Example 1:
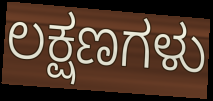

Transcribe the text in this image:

ಲಕ್ಷಣಗಳು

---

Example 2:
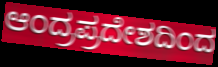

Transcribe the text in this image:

ಆಂದ್ರಪ್ರದೇಶದಿಂದ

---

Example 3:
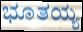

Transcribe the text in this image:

ಭೂತಯ್ಯ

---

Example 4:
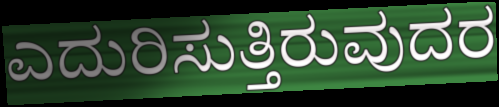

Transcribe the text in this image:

ಎದುರಿಸುತ್ತಿರುವುದರ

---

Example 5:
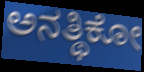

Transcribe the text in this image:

ಅನತ್ಥಿಕೋ